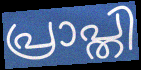
പ്രാപ്തി